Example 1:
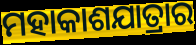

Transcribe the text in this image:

ମହାକାଶଯାତ୍ରାର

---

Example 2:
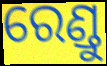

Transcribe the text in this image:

ରେଣ୍ଡୁ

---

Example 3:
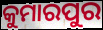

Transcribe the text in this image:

କୁମାରପୁର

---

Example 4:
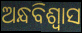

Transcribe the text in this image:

ଅନ୍ଧବିଶ୍ଵାସ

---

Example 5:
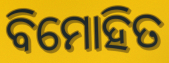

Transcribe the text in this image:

ବିମୋହିତ